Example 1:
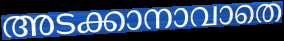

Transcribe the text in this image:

അടക്കാനാവാതെ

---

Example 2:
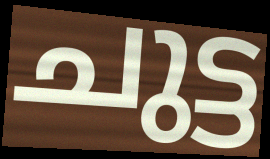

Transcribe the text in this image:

ചുട്ട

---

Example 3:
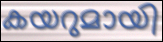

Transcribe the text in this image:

കയറുമായി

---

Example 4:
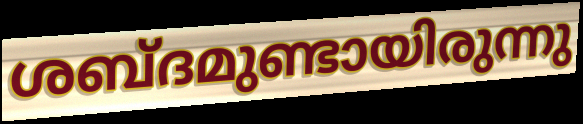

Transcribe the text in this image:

ശബ്ദമുണ്ടായിരുന്നു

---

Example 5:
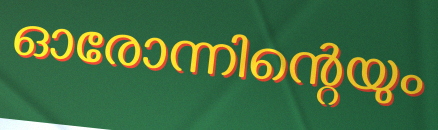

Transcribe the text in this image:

ഓരോന്നിന്റെയും